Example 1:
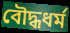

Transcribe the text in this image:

বৌদ্ধধৰ্ম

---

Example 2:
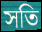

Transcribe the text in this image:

সতি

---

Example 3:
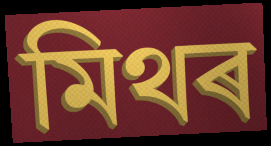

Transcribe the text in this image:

মিথৰ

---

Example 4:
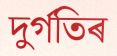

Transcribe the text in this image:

দুৰ্গতিৰ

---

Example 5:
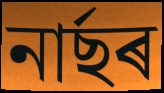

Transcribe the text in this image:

নাৰ্ছৰ